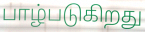
பாழ்படுகிறது